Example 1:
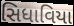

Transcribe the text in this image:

સિધાવિયા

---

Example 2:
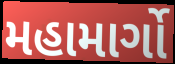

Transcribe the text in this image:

મહામાર્ગો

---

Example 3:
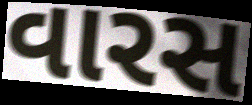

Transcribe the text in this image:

વારસ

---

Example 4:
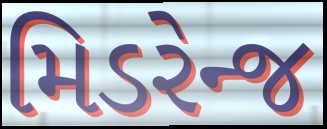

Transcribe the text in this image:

મિડરેન્જ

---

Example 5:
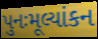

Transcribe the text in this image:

પુનઃમૂલ્યાંકન